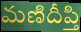
మణిదీప్తి